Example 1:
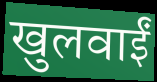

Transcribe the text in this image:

खुलवाईं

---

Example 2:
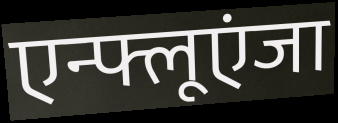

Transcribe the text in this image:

एन्फ्लूएंजा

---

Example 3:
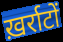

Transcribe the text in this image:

ख़र्राटों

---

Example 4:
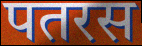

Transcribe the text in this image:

पतरस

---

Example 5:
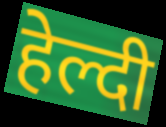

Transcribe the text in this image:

हेल्‍दी